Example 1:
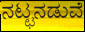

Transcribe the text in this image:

ನಟ್ಟನಡುವೆ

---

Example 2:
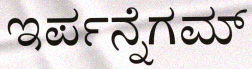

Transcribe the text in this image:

ಇರ್ಪನ್ನೆಗಮ್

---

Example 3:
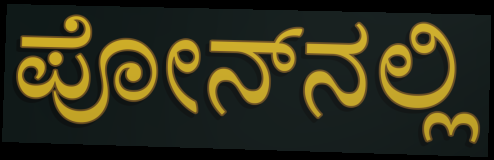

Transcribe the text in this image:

ಪೋನ್‍ನಲ್ಲಿ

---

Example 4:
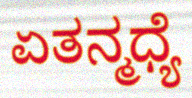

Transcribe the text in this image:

ಏತನ್ಮಧ್ಯೆ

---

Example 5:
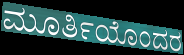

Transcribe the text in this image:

ಮೂರ್ತಿಯೊಂದರ